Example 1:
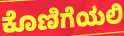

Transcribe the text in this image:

ಕೊಣಿಗೆಯಲಿ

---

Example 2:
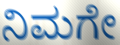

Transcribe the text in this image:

ನಿಮಗೇ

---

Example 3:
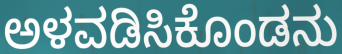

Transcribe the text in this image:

ಅಳವಡಿಸಿಕೊಂಡನು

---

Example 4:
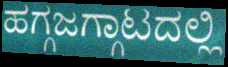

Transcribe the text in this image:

ಹಗ್ಗಜಗ್ಗಾಟದಲ್ಲಿ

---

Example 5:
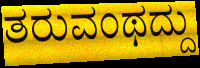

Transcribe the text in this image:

ತರುವಂಥದ್ದು